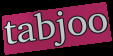
tabjoo